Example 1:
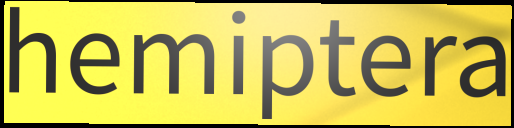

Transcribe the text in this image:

hemiptera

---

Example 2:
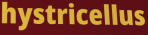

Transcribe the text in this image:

hystricellus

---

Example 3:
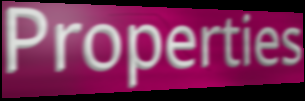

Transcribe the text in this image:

Properties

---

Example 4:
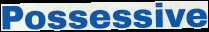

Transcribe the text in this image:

Possessive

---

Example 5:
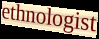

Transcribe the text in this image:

ethnologist